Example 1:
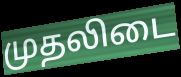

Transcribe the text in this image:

முதலிடை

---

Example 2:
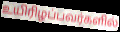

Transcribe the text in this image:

உயிரிழப்பவர்களில்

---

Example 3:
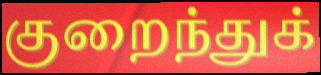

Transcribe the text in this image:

குறைந்துக்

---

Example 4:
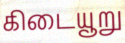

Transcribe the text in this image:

கிடையூறு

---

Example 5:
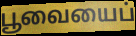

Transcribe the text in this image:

பூவையைப்